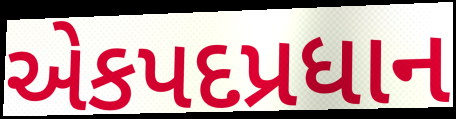
એકપદપ્રધાન